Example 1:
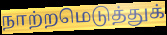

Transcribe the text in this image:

நாற்றமெடுத்துக்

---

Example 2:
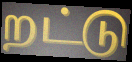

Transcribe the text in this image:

றட்டு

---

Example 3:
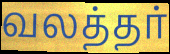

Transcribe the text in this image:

வலத்தர்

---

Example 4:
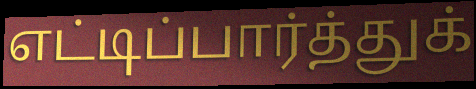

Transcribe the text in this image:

எட்டிப்பார்த்துக்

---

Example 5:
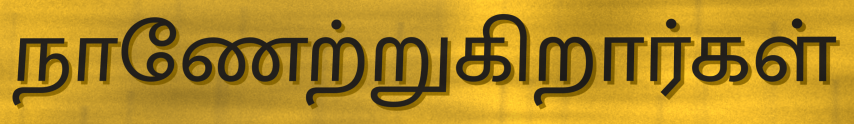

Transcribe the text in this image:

நாணேற்றுகிறார்கள்